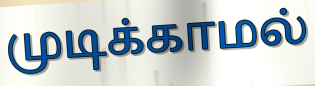
முடிக்காமல்